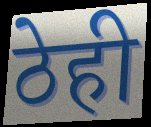
ठेही